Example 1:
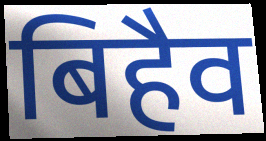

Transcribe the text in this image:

बिहैव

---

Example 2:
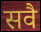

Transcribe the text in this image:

सवै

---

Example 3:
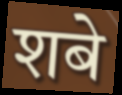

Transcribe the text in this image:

शबे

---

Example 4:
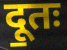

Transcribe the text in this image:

दू॒तः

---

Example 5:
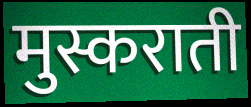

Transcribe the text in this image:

मुस्कराती